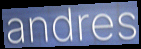
andres